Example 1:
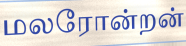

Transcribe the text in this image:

மலரோன்றன்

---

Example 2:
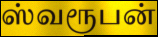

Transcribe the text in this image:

ஸ்வரூபன்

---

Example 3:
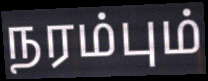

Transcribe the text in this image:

நரம்பும்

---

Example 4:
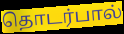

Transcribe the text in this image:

தொடர்பால்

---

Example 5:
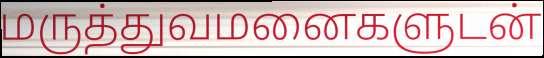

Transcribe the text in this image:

மருத்துவமனைகளுடன்